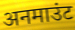
अनमाउंट